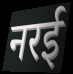
नरई